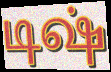
டிஷ்